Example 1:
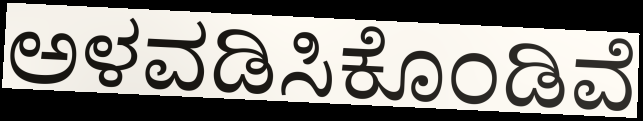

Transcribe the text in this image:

ಅಳವಡಿಸಿಕೊಂಡಿವೆ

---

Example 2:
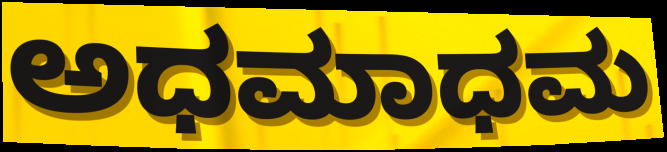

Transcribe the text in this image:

ಅಧಮಾಧಮ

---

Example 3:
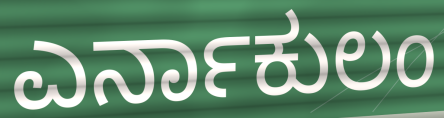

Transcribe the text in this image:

ಎರ್ನಾಕುಲಂ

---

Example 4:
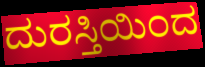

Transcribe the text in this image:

ದುರಸ್ತಿಯಿಂದ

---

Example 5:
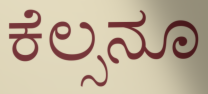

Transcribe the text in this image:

ಕೆಲ್ಸನೂ